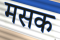
मसक